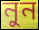
নুন